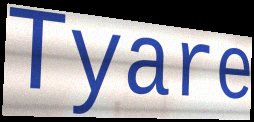
Tyare